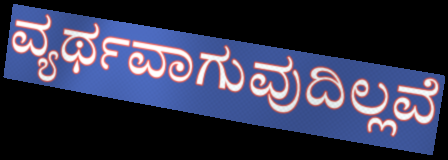
ವ್ಯರ್ಥವಾಗುವುದಿಲ್ಲವೆ